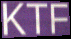
KTF